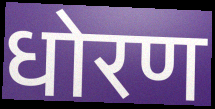
धोरण